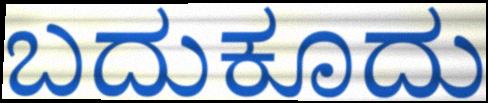
ಬದುಕೂದು